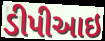
ડીપીઆઇ